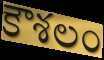
కౌశలం